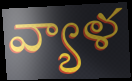
వ్యాళ